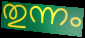
തുന്നം